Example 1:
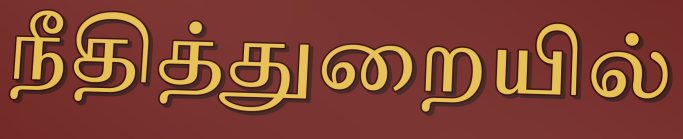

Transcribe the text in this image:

நீதித்துறையில்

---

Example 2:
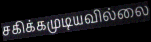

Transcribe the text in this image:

சகிக்கமுடியவில்லை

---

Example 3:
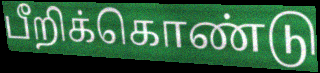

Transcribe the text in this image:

பீறிக்கொண்டு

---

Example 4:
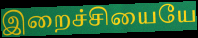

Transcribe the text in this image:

இறைச்சியையே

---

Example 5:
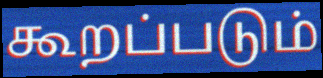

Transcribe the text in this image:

கூறப்படும்